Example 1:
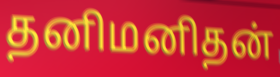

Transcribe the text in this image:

தனிமனிதன்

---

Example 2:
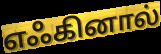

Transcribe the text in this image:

எஃகினால்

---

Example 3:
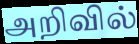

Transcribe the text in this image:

அறிவில்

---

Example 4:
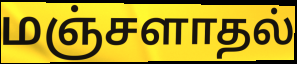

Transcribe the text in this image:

மஞ்சளாதல்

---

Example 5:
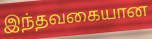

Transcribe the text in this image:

இந்தவகையான